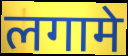
लगामे